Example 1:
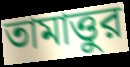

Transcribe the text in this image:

তামাত্তুর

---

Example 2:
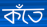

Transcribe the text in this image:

কঁতে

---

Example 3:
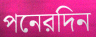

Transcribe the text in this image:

পনেরদিন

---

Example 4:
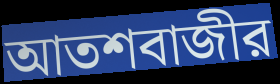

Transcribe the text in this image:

আতশবাজীর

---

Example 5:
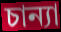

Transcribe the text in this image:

চান্যা